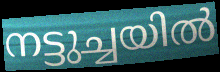
നട്ടുച്ചയിൽ